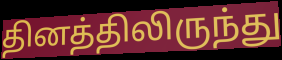
தினத்திலிருந்து